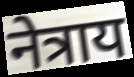
नेत्राय